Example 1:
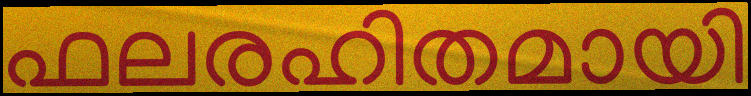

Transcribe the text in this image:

ഫലരഹിതമായി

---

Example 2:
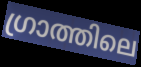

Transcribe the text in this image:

ഗ്രാത്തിലെ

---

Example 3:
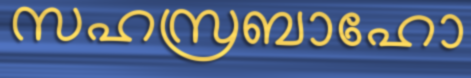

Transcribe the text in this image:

സഹസ്രബാഹോ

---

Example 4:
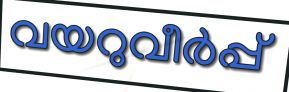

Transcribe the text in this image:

വയറുവീർപ്പ്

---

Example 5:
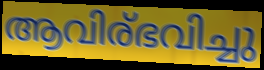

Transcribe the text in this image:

ആവിര്ഭവിച്ചു